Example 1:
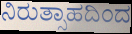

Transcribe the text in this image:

ನಿರುತ್ಸಾಹದಿಂದ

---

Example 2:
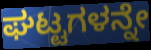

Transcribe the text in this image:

ಘಟ್ಟಗಳನ್ನೇ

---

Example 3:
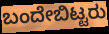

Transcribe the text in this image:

ಬಂದೇಬಿಟ್ಟರು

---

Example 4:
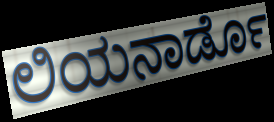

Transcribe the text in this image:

ಲಿಯನಾರ್ಡೊ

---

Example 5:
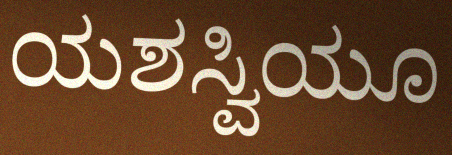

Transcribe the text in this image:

ಯಶಸ್ವಿಯೂ